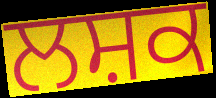
ਲਸ਼ਕ